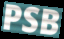
PSB